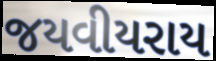
જયવીયરાય